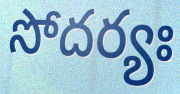
సోదర్యః